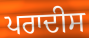
ਪਰਾਦੀਸ